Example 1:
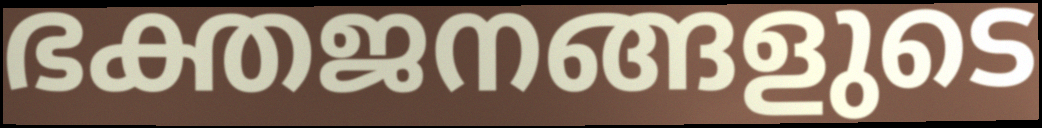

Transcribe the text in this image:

ഭക്തജനങ്ങളുടെ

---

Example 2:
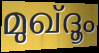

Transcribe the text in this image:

മുഖ്ദൂം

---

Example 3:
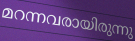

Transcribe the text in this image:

മറന്നവരായിരുന്നു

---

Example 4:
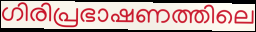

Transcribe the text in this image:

ഗിരിപ്രഭാഷണത്തിലെ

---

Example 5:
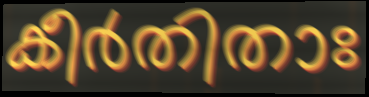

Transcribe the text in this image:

കീർതിതാഃ